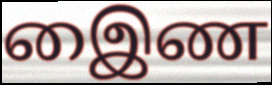
இைண